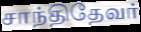
சாந்திதேவர்